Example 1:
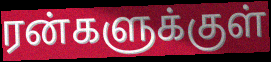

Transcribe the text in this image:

ரன்களுக்குள்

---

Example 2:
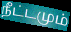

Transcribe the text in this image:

நீட்டமும்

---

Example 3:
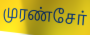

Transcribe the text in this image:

முரண்சேர்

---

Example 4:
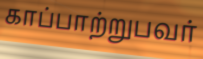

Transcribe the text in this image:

காப்பாற்றுபவர்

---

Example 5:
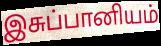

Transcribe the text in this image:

இசுப்பானியம்